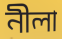
নীলা